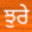
ਝੁਰੇ